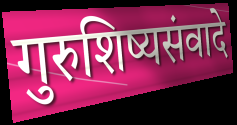
गुरुशिष्यसंवादे